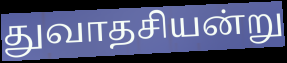
துவாதசியன்று